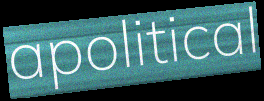
apolitical